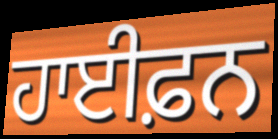
ਹਾਈਫ਼ਨ